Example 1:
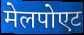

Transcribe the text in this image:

मेलपोएट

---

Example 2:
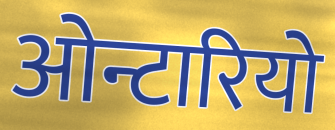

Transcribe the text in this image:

ओन्टारियो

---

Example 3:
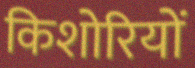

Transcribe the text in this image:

किशोरियों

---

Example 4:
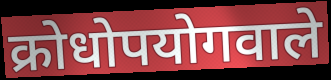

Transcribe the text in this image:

क्रोधोपयोगवाले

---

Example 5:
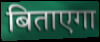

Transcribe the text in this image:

बिताएगा